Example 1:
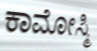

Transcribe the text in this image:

ಕಾಮೋಸ್ಮಿ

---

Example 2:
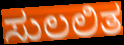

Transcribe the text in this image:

ಸುಲಲಿತ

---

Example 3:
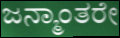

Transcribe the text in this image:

ಜನ್ಮಾಂತರೇ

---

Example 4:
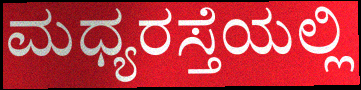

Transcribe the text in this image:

ಮಧ್ಯರಸ್ತೆಯಲ್ಲಿ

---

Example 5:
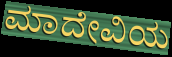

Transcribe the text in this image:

ಮಾದೇವಿಯ